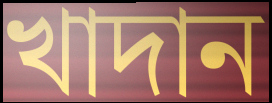
খাদান